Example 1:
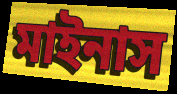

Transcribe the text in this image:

মাইনাস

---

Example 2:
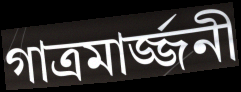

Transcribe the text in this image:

গাত্রমার্জ্জনী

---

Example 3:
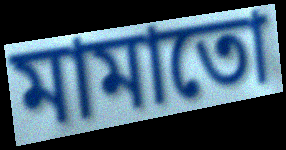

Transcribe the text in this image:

মামাতো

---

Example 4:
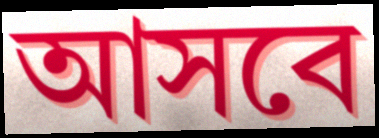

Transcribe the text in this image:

আসবে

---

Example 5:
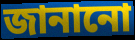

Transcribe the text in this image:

জানানো